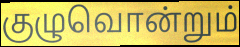
குழுவொன்றும்